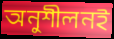
অনুশীলনই